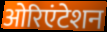
ओरिएंटेशन